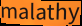
malathy